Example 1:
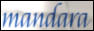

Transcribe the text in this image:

mandara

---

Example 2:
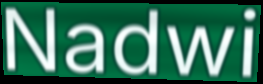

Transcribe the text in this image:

Nadwi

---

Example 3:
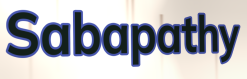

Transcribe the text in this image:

Sabapathy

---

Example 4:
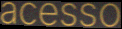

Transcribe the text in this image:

acesso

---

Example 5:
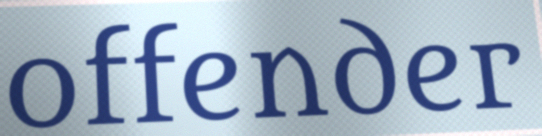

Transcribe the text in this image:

offender